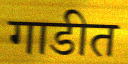
गाडीत